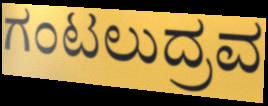
ಗಂಟಲುದ್ರವ